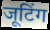
जूटिंग